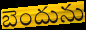
బెందును